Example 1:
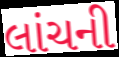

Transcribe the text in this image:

લાંચની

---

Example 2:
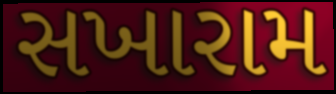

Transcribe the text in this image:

સખારામ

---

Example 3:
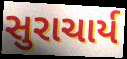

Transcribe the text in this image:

સુરાચાર્ય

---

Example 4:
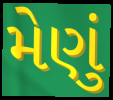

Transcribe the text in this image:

મેણું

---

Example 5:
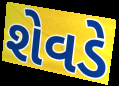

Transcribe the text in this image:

શેવડે